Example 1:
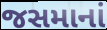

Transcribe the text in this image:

જસમાનાં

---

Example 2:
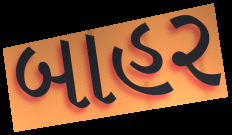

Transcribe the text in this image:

બાહર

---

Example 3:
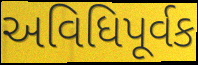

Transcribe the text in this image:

અવિધિપૂર્વક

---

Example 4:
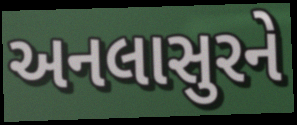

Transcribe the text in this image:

અનલાસુરને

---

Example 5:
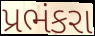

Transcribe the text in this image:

પ્રભંકરા